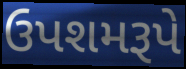
ઉપશમરૂપે